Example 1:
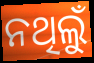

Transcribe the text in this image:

ନଥିଲୁଁ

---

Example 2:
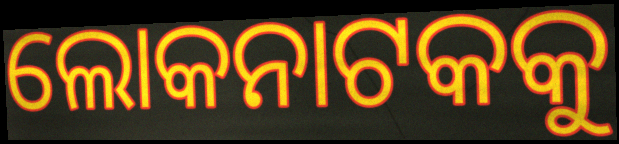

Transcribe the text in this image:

ଲୋକନାଟକକୁ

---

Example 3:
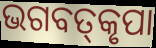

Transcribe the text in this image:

ଭଗବତ୍‌କୃପା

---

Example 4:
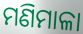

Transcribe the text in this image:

ମଣିମାଳା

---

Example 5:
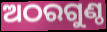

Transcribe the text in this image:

ଅଠରଗୁଣ୍ଠ